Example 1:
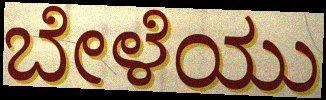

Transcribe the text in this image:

ಬೇಳೆಯು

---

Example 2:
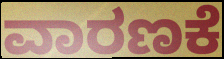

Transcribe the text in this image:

ವಾರಣಕೆ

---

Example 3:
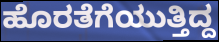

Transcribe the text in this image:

ಹೊರತೆಗೆಯುತ್ತಿದ್ದ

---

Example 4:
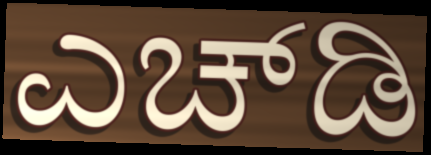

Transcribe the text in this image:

ಎಚ್‍ಡಿ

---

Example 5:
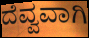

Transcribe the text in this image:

ದೆವ್ವವಾಗಿ